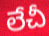
లేచీ